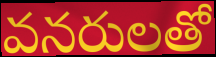
వనరులతో